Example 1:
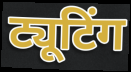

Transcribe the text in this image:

ट्यूटिंग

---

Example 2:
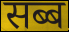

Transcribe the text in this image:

सब्ब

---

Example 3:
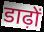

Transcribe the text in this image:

डाढ़ों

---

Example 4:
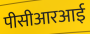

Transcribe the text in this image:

पीसीआरआई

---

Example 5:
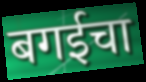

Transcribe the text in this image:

बगईचा